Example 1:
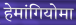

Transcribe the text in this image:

हेमांगियोमा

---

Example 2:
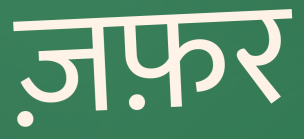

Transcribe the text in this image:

ज़फ़र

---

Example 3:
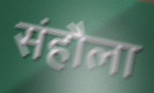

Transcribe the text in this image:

संहौला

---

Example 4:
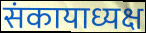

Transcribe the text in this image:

संकायाध्यक्ष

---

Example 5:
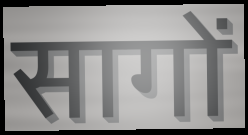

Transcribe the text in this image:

सागों